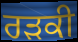
ਰੜਕੀ